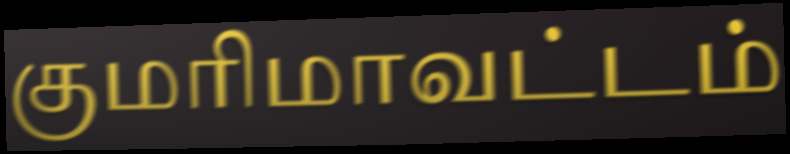
குமரிமாவட்டம்